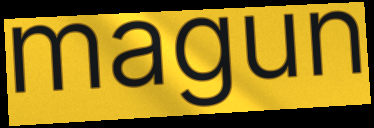
magun